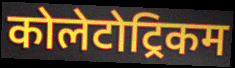
कोलेटोट्रिकम